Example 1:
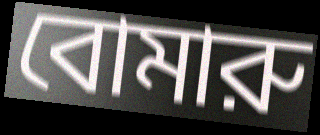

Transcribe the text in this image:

বোমারু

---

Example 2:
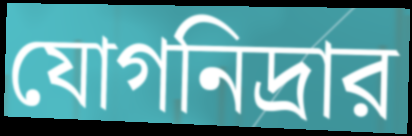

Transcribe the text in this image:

যোগনিদ্রার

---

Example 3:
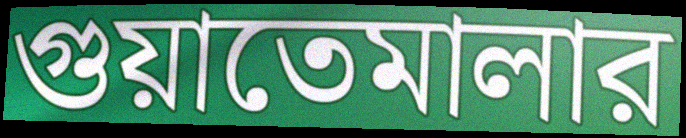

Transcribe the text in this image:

গুয়াতেমালার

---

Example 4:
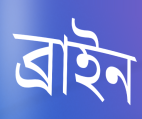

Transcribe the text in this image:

ব্রাইন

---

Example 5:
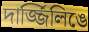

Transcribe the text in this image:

দার্জ্জিলিঙে